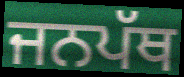
ਜਨਪੱਥ